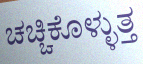
ಚಚ್ಚಿಕೊಳ್ಳುತ್ತ